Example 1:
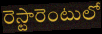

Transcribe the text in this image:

రెస్టారెంటులో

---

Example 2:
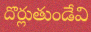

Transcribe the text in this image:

దొర్లుతుండేవి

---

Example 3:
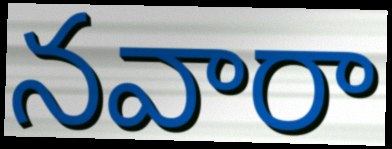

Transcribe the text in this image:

నవారా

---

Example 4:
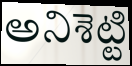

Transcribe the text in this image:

అనిశెట్టి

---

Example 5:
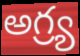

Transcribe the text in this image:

అగ్ర్య